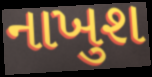
નાખુશ